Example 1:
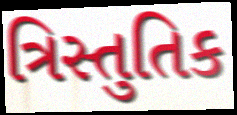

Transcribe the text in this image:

ત્રિસ્તુતિક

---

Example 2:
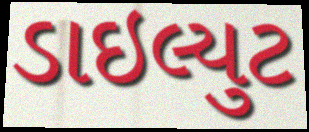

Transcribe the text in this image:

ડાઇલ્યુટ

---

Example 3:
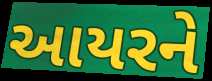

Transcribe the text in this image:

આયરને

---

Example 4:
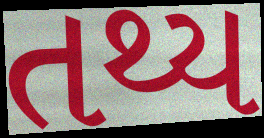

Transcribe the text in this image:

તથ્ય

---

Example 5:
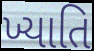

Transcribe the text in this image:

ખ્યાતિ